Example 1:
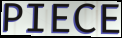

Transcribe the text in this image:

PIECE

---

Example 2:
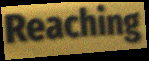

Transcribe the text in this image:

Reaching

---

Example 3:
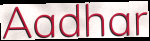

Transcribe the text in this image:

Aadhar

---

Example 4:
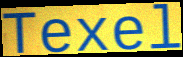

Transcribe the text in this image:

Texel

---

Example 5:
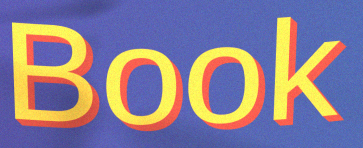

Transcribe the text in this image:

Book